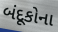
બંદૂકોના